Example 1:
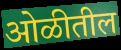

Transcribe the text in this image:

ओळीतील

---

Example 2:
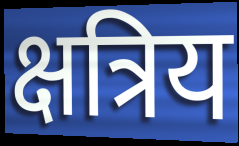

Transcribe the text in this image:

क्षत्रिय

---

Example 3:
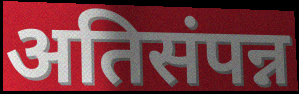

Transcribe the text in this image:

अतिसंपन्न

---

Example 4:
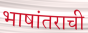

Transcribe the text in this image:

भाषांतराची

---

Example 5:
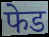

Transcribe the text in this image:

फेड